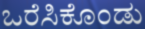
ಒರೆಸಿಕೊಂಡು